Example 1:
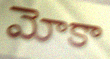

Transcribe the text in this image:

మోకా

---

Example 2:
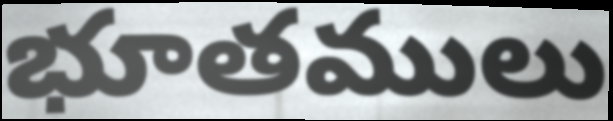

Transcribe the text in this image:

భూతములు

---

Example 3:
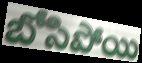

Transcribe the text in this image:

బోసిపోయి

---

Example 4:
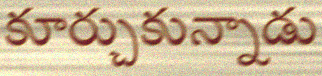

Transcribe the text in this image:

కూర్చుకున్నాడు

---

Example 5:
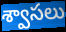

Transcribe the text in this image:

శ్వాసలు